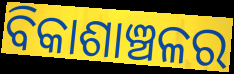
ବିକାଶାଞ୍ଚଳର